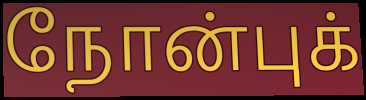
நோன்புக்